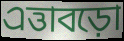
এত্তাবড়ো